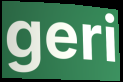
geri